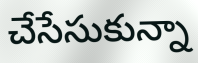
చేసేసుకున్నా